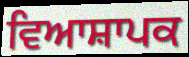
ਵਿਆਸ਼ਾਪਕ